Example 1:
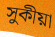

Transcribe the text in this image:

সুকীয়া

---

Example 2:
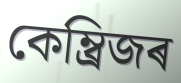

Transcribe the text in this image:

কেম্ব্ৰিজৰ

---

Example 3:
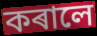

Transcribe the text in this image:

কৰালে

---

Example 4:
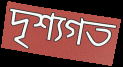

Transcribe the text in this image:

দৃশ্যগত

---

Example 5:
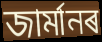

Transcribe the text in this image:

জাৰ্মানৰ